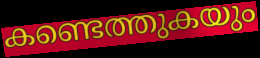
കണ്ടെത്തുകയും